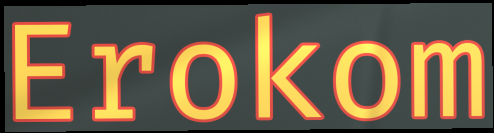
Erokom